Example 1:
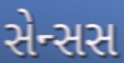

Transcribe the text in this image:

સેન્સસ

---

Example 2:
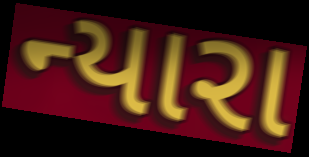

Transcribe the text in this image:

ન્યારા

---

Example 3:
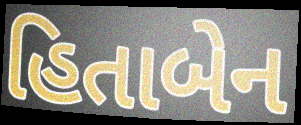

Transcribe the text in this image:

હિતાબેન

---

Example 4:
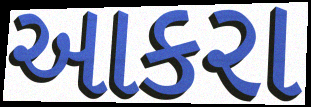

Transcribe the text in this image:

આકરા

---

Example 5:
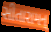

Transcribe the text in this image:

સીતારામન્